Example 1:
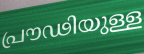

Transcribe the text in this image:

പ്രൗഢിയുള്ള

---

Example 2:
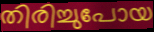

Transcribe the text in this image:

തിരിച്ചുപോയ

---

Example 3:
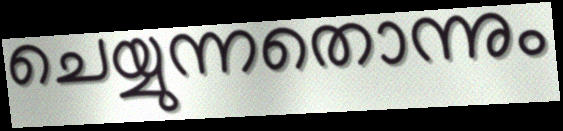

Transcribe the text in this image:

ചെയ്യുന്നതൊന്നും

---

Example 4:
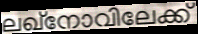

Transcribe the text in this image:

ലഖ്നോവിലേക്ക്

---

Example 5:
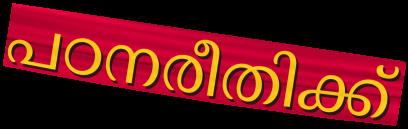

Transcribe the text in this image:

പഠനരീതിക്ക്